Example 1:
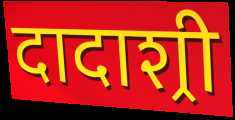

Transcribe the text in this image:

दादाश्री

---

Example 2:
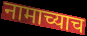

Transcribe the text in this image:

नामाच्याच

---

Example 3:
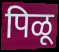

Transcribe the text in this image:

पिळू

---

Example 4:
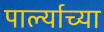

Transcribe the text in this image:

पार्ल्याच्या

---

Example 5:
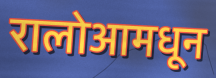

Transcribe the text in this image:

रालोआमधून